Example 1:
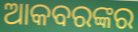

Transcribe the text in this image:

ଆକବରଙ୍କର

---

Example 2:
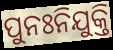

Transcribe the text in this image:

ପୁନଃନିଯୁକ୍ତି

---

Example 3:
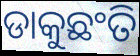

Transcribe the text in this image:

ଡାକୁଛଂତି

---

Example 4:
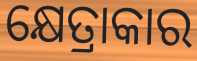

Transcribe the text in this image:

କ୍ଷେତ୍ରାକାର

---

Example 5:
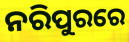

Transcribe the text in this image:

ନରିପୁରରେ